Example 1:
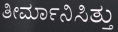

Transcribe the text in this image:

ತೀರ್ಮಾನಿಸಿತ್ತು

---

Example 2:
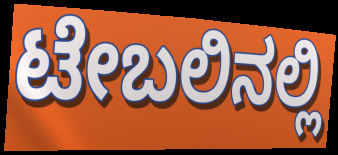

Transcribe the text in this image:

ಟೇಬಲಿನಲ್ಲಿ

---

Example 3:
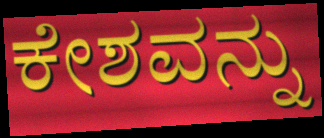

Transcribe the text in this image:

ಕೇಶವನ್ನು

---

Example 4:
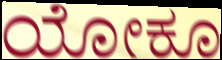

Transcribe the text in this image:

ಯೋಕೂ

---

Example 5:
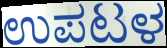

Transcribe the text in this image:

ಉಪಟಳ